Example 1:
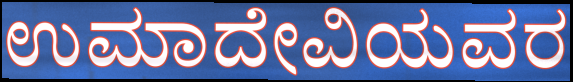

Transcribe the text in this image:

ಉಮಾದೇವಿಯವರ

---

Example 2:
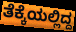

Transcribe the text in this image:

ತೆಕ್ಕೆಯಲ್ಲಿದ್ದ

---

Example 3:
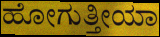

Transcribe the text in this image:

ಹೋಗುತ್ತೀಯಾ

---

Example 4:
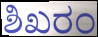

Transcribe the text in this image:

ಶಿಖರಂ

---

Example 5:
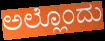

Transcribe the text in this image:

ಅಲ್ಲೊಂದು